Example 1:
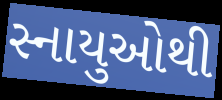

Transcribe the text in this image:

સ્નાયુઓથી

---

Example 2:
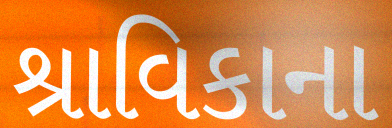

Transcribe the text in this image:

શ્રાવિકાના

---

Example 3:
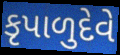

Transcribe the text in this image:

કૃપાળુદેવે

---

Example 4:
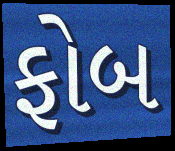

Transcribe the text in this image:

ફોબ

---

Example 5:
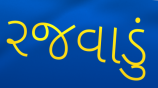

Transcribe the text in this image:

રજવાડું